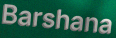
Barshana